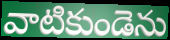
వాటికుండెను